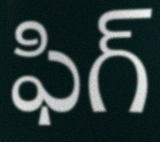
ఫిగ్